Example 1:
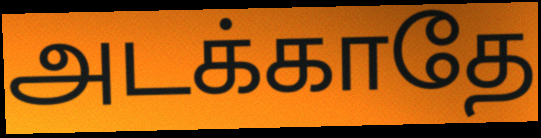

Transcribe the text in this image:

அடக்காதே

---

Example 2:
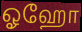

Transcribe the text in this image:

ஓஹோ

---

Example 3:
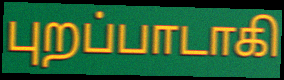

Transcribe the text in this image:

புறப்பாடாகி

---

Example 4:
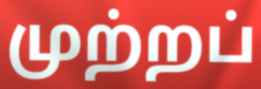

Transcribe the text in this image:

முற்றப்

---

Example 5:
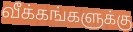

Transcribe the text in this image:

வீக்கங்களுக்கு